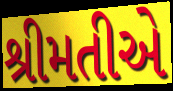
શ્રીમતીએ